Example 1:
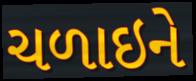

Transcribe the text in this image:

ચળાઇને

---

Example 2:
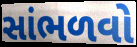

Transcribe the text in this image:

સાંભળવો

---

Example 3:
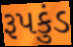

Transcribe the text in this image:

રૂપકુંડ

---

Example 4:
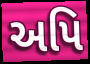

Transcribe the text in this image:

અપિ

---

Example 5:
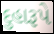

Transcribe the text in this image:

દુહારૂપે